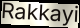
Rakkayi